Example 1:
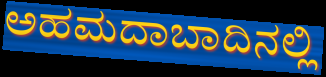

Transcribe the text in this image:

ಅಹಮದಾಬಾದಿನಲ್ಲಿ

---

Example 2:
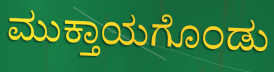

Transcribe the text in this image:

ಮುಕ್ತಾಯಗೊಂಡು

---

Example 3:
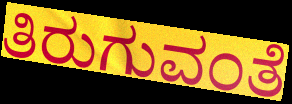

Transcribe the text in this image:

ತಿರುಗುವಂತೆ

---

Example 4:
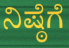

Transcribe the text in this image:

ನಿಷ್ಠೆಗೆ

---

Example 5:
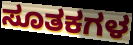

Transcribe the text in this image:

ಸೂತಕಗಳ